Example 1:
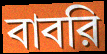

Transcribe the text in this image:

বাবরি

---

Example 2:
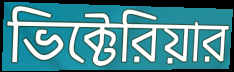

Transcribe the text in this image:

ভিক্টেরিয়ার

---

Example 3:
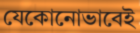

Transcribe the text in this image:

যেকোনোভাবেই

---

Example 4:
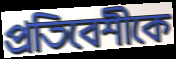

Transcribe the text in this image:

প্রতিবেশীকে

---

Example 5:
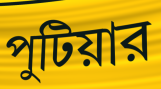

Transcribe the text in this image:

পুটিয়ার